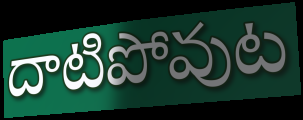
దాటిపోవుట